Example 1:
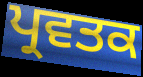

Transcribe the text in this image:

ਪ੍ਰਵਤਕ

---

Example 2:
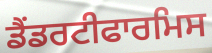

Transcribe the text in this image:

ਡੈਂਡਰਟੀਫਾਰਮਿਸ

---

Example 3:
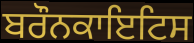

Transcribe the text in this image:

ਬਰੌਨਕਾਇਟਿਸ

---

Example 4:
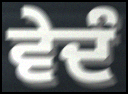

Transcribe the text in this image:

ਵੇਦੰ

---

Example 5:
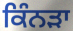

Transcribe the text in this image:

ਕਿੰਨੜਾ